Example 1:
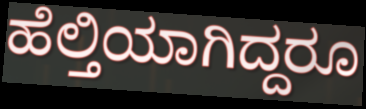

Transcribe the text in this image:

ಹೆಲ್ತಿಯಾಗಿದ್ದರೂ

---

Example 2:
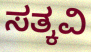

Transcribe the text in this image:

ಸತ್ಕವಿ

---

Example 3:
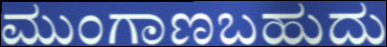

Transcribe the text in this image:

ಮುಂಗಾಣಬಹುದು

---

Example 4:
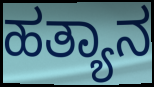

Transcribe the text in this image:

ಹತ್ಯಾನ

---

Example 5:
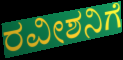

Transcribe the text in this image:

ರವೀಶನಿಗೆ